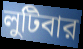
লুটিবার